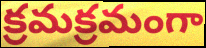
క్రమక్రమంగా